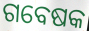
ଗବେଷକ